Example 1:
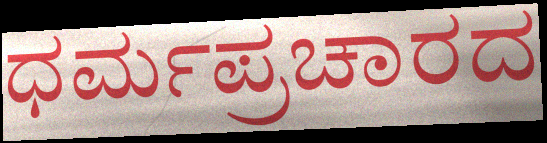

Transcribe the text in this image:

ಧರ್ಮಪ್ರಚಾರದ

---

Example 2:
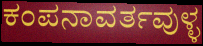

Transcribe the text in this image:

ಕಂಪನಾವರ್ತವುಳ್ಳ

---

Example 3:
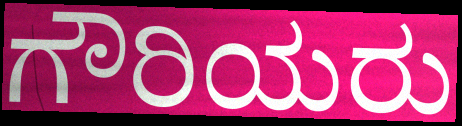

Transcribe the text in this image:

ಗೌರಿಯರು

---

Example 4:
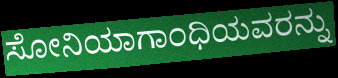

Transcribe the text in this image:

ಸೋನಿಯಾಗಾಂಧಿಯವರನ್ನು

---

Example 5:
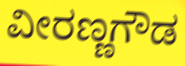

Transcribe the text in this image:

ವೀರಣ್ಣಗೌಡ